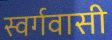
स्‍वर्गवासी